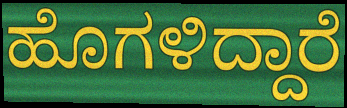
ಹೊಗಳಿದ್ದಾರೆ